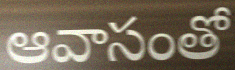
ఆవాసంతో